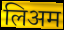
लिअम